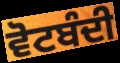
ਵੋਟਬੰਦੀ